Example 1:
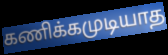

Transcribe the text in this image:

கணிக்கமுடியாத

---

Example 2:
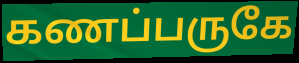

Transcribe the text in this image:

கணப்பருகே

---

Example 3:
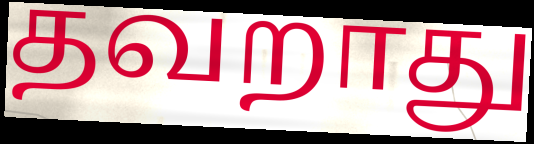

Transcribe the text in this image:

தவறாது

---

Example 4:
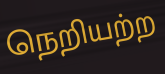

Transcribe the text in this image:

நெறியற்ற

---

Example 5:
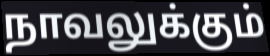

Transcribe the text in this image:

நாவலுக்கும்